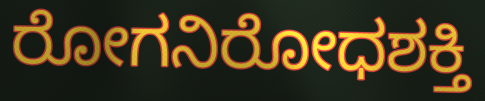
ರೋಗನಿರೋಧಶಕ್ತಿ